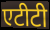
एटीटी